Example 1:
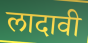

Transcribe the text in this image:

लादावी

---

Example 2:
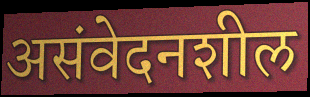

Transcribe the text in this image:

असंवेदनशील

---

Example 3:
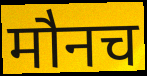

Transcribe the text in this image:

मौनच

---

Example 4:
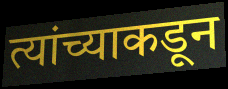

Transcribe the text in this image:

त्यांच्याकडून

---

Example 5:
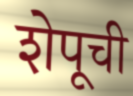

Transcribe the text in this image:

शेपूची